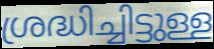
ശ്രദ്ധിച്ചിട്ടുള്ള